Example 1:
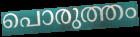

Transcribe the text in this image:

പൊരുത്തം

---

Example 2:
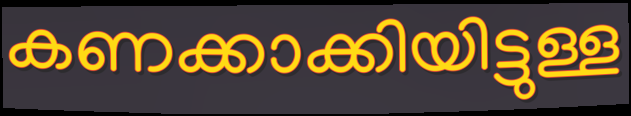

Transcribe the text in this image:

കണക്കാക്കിയിട്ടുള്ള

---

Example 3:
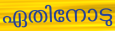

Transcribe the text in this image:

ഏതിനോടു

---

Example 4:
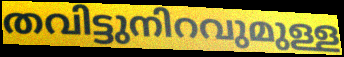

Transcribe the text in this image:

തവിട്ടുനിറവുമുള്ള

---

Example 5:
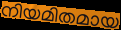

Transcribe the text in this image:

നിയമിതമായ